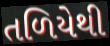
તળિયેથી